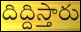
దిద్దిస్తారు